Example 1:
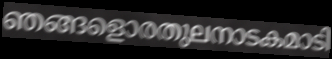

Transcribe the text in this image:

ഞങ്ങളൊരതുലനാടകമാടി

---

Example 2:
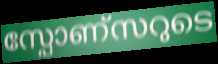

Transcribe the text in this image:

സ്പോണ്സറുടെ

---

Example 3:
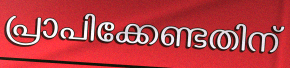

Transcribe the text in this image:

പ്രാപിക്കേണ്ടതിന്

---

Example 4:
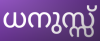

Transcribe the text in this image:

ധനുസ്സ്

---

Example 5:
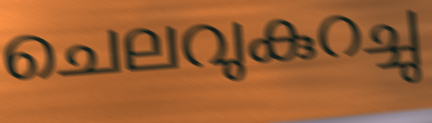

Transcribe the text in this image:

ചെലവുകുറച്ചു